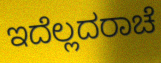
ಇದೆಲ್ಲದರಾಚೆ